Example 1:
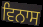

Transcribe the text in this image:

ਵਿਨਾਸ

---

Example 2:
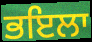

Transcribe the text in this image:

ਭਇਲਾ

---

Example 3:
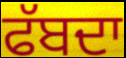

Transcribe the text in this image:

ਫੱਬਦਾ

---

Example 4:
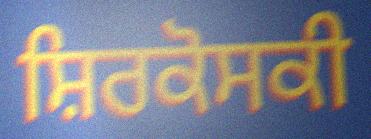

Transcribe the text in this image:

ਸ਼ਿਰਕੋਸਕੀ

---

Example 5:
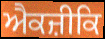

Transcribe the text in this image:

ਐਕਜ਼ੀਕਿ